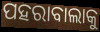
ପହରାବାଲାକୁ